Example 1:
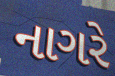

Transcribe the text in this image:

નાગરે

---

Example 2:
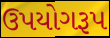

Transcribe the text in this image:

ઉપયોગરૂપ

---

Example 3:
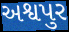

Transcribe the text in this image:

અશ્વપુર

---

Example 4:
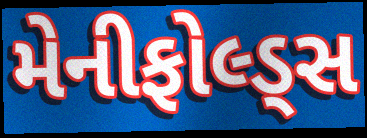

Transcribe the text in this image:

મેનીફોલ્ડ્સ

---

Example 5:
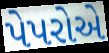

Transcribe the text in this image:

પેપરોએ